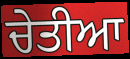
ਚੇਤੀਆ